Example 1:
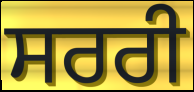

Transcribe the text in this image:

ਸਰਰੀ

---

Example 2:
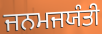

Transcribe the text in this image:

ਜਨਮਜਯੰਤੀ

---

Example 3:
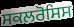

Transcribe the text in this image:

ਸਕਲਰੋਸਿਸ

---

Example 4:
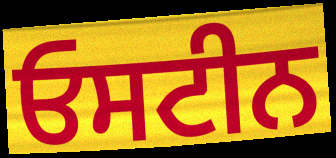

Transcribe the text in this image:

ਓਸਟੀਨ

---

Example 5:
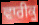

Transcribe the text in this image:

ਵਾਰੀਕੂ